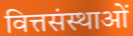
वित्तसंस्थाओं